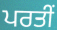
ਪਰਤੀਂ